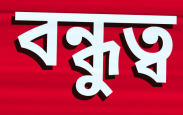
বন্ধুত্ব